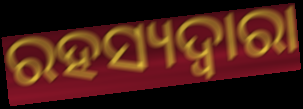
ରହସ୍ୟଦ୍ଵାରା